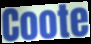
Coote